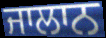
ਜਾਲਾਨ